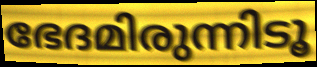
ഭേദമിരുന്നിടൂ